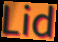
Lid